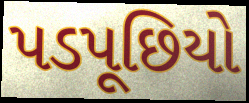
પડપૂછિયો